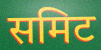
समिट